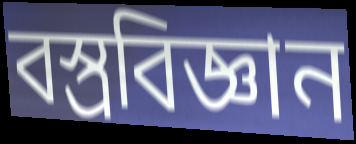
বস্ত্রবিজ্ঞান